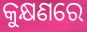
କୁକ୍ଷଣରେ